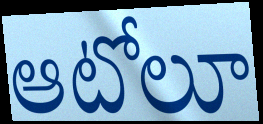
ఆటోలూ